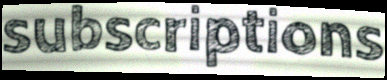
subscriptions